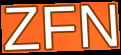
ZFN